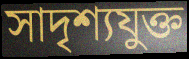
সাদৃশ্যযুক্ত